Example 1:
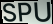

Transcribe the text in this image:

SPU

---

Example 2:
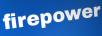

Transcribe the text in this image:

firepower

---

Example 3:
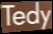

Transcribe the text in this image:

Tedy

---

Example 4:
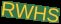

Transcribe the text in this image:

RWHS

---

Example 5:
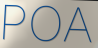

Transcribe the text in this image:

POA